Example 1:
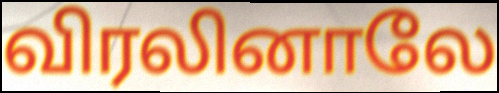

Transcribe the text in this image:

விரலினாலே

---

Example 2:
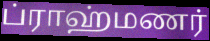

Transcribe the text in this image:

ப்ராஹ்மணர்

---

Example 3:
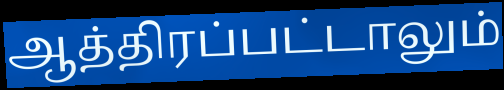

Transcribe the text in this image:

ஆத்திரப்பட்டாலும்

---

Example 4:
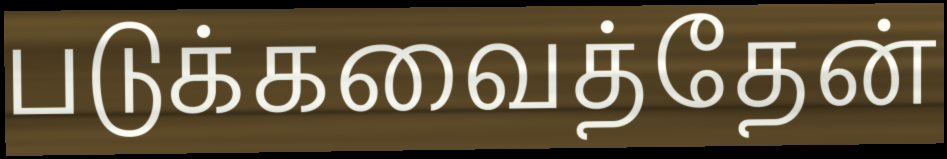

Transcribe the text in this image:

படுக்கவைத்தேன்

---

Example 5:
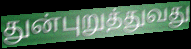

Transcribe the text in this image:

துன்புறுத்துவது